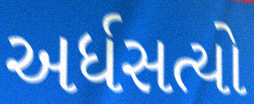
અર્ધસત્યો